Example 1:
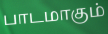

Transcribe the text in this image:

பாடமாகும்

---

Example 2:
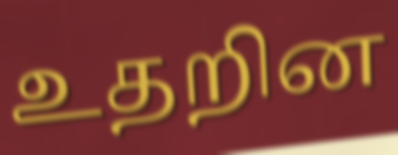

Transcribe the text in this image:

உதறின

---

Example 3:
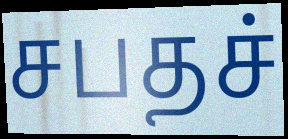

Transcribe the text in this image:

சபதச்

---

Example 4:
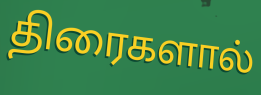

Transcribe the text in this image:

திரைகளால்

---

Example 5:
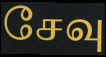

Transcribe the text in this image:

சேவு